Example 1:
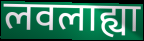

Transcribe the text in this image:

लवलाह्या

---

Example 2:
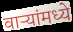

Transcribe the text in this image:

वाऱ्यांमध्ये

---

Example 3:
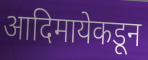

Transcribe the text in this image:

आदिमायेकडून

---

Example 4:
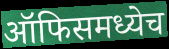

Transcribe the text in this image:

ऑफिसमध्येच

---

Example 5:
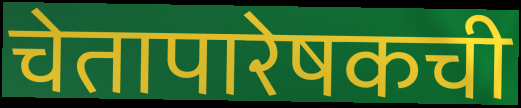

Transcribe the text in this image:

चेतापारेषकची